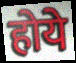
होये